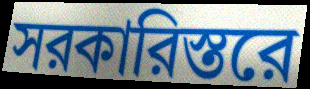
সরকারিস্তরে